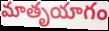
మాతృయాగం